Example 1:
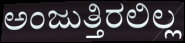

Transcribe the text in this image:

ಅಂಜುತ್ತಿರಲಿಲ್ಲ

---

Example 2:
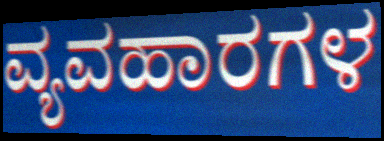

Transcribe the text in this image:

ವ್ಯವಹಾರಗಳ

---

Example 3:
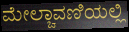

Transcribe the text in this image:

ಮೇಲ್ಚಾವಣಿಯಲ್ಲಿ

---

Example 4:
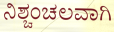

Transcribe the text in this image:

ನಿಶ್ಚಂಚಲವಾಗಿ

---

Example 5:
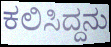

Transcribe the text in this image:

ಕಲಿಸಿದ್ದನು